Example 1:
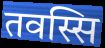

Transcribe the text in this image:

तवस्सि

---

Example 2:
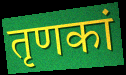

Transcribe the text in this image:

तृणकां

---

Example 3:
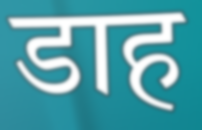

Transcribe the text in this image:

डाह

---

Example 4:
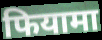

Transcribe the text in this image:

फियामा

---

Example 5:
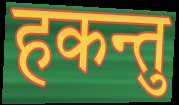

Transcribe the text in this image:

हकन्तु